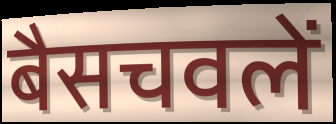
बैसचवलें